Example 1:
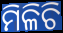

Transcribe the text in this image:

ମିଳିଚି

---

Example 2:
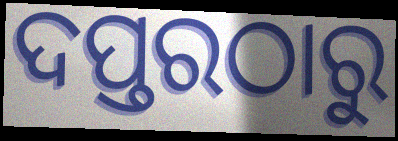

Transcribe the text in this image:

ଦପ୍ତରଠାରୁ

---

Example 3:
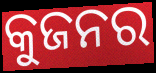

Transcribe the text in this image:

କୁଜନର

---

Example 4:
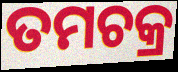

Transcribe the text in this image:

ତମଚକ୍ର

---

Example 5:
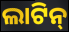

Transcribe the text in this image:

ଲାଟିନ୍